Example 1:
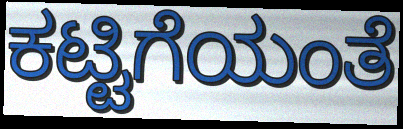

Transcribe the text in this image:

ಕಟ್ಟಿಗೆಯಂತೆ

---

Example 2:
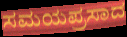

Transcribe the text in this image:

ಸಮಯಪ್ರಸಾದ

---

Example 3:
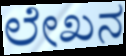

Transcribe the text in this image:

ಲೇಖನ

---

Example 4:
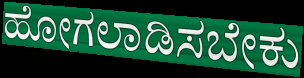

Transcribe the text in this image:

ಹೋಗಲಾಡಿಸಬೇಕು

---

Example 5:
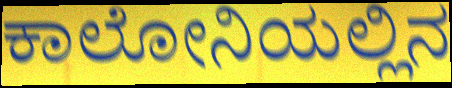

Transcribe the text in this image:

ಕಾಲೋನಿಯಲ್ಲಿನ